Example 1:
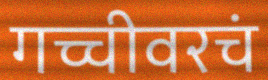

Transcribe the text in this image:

गच्चीवरचं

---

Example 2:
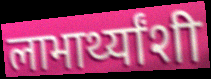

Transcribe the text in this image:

लाभार्थ्यांशी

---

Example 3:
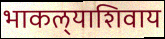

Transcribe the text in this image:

भाकल्याशिवाय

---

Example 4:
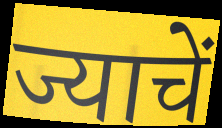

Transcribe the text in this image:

ज्याचें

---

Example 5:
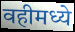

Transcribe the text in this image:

वहीमध्ये